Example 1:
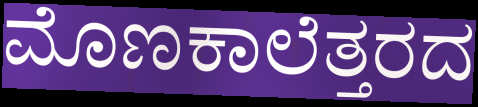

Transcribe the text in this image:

ಮೊಣಕಾಲೆತ್ತರದ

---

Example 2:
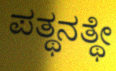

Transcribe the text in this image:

ಪತ್ಥನತ್ಥೇ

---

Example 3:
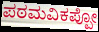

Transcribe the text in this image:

ಪಠಮವಿಕಪ್ಪೋ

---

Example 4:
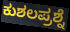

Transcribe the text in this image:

ಕುಶಲಪ್ರಶ್ನೆ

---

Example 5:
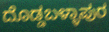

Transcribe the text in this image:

ದೊಡ್ಡಬಳ್ಳಾಪುರ